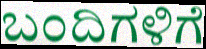
ಬಂದಿಗಳಿಗೆ